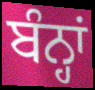
ਬੰਨ੍ਹਾਂ